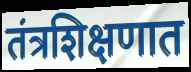
तंत्रशिक्षणात